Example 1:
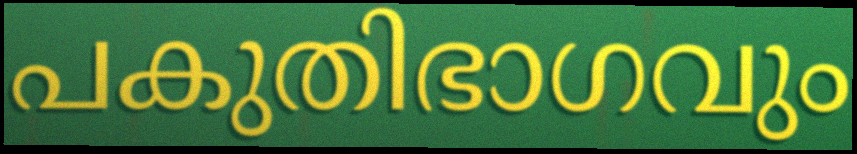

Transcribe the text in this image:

പകുതിഭാഗവും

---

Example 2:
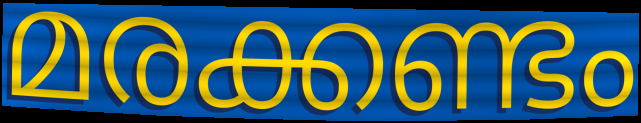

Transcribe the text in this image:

മരക്കണ്ടം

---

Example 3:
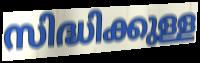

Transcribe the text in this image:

സിദ്ധിക്കുള്ള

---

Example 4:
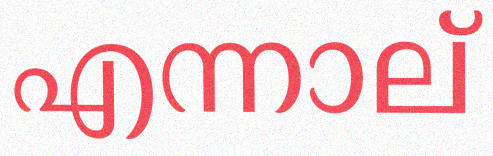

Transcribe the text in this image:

എന്നാല്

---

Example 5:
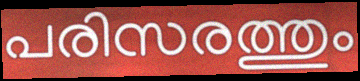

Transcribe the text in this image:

പരിസരത്തും